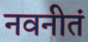
नवनीतं